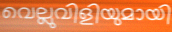
വെല്ലുവിളിയുമായി